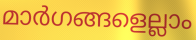
മാർഗങ്ങളെല്ലാം